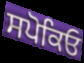
ਸਪੋਕਿਓ